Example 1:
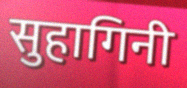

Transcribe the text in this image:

सुहागिनी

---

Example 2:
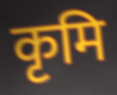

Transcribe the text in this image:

कृमि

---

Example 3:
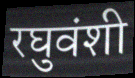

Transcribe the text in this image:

रघुवंशी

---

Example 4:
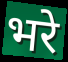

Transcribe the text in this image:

भरे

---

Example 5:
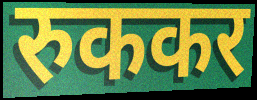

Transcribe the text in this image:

रुककर